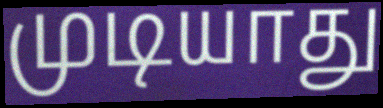
முடியாது